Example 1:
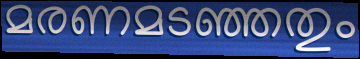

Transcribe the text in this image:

മരണമടഞ്ഞതും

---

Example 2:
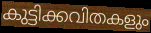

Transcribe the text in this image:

കുട്ടിക്കവിതകളും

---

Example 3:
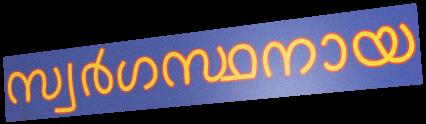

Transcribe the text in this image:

സ്വർഗസ്ഥനായ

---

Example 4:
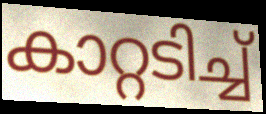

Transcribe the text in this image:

കാറ്റടിച്ച്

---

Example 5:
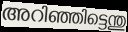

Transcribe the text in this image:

അറിഞ്ഞിട്ടെന്തു